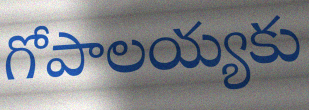
గోపాలయ్యకు